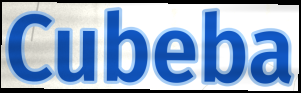
Cubeba